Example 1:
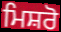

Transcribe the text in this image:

ਮਿਸ਼ਰੋ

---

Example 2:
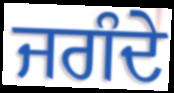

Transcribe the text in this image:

ਜਗੰਦੇ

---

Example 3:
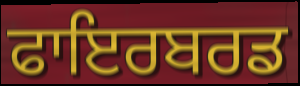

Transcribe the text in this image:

ਫਾਇਰਬਰਡ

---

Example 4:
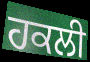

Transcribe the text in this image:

ਹਕਲੀ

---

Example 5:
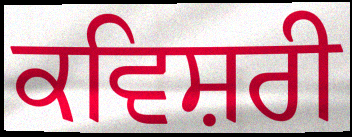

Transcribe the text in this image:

ਕਵਿਸ਼ਰੀ